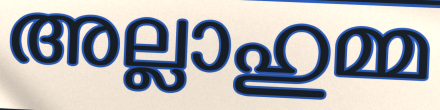
അല്ലാഹുമ്മ